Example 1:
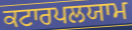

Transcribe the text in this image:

ਕਟਾਰਪਲਯਾਮ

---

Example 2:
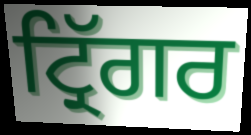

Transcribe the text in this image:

ਟ੍ਰਿੱਗਰ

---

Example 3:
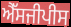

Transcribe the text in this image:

ਐੱਸਜੀਪੀਸ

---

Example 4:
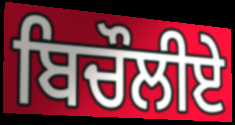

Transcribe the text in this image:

ਬਿਚੌਲੀਏ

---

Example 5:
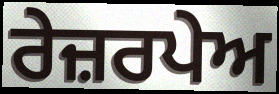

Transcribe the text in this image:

ਰੇਜ਼ਰਪੇਅ